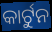
କାର୍ଟୁନ